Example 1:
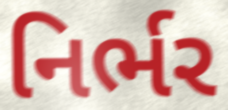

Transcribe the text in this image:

નિર્ભર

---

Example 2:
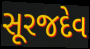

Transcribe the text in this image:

સૂરજદેવ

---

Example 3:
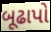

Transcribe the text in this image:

બૂઢાપો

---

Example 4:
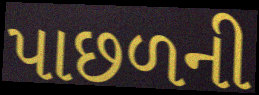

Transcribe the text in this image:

પાછળની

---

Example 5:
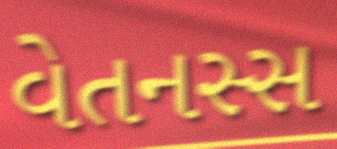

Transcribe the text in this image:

વેતનસ્સ